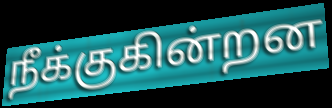
நீக்குகின்றன